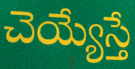
చెయ్యేస్తే